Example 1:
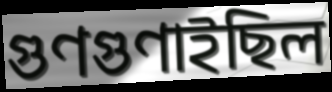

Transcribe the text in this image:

গুণগুণাইছিল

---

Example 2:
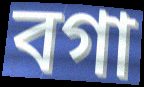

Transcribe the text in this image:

বগা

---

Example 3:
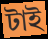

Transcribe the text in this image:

টাই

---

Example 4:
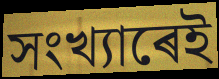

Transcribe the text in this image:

সংখ্যাৰেই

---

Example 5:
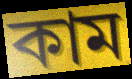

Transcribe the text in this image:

কাম